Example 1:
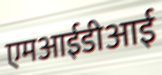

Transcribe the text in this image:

एमआईडीआई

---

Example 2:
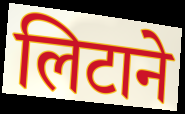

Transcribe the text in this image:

लिटाने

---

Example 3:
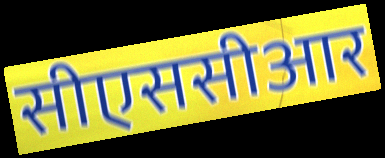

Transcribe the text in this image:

सीएससीआर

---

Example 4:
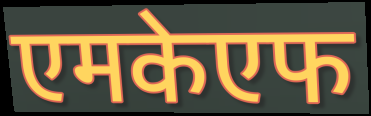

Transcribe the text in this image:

एमकेएफ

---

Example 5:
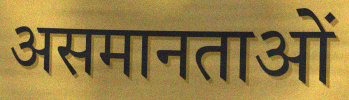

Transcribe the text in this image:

असमानताओं